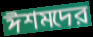
ঈশমদের